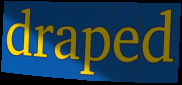
draped